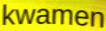
kwamen